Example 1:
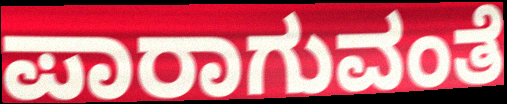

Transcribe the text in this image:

ಪಾರಾಗುವಂತೆ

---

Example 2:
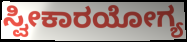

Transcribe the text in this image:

ಸ್ವೀಕಾರಯೋಗ್ಯ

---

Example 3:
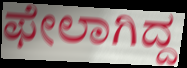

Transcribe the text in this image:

ಫೇಲಾಗಿದ್ದ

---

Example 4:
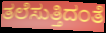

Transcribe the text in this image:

ತಲೆಸುತ್ತಿದಂತೆ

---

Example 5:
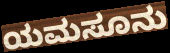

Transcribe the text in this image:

ಯಮಸೂನು